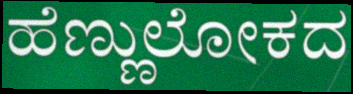
ಹೆಣ್ಣುಲೋಕದ